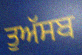
ਤੁਅੱਸਬ